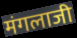
मंगलाजी